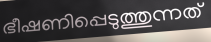
ഭീഷണിപ്പെടുത്തുന്നത്